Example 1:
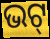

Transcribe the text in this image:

ଭଟ୍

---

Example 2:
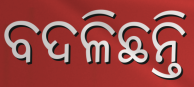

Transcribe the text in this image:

ବଦଳିଛନ୍ତି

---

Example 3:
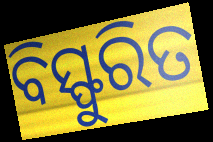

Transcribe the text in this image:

ବିସ୍ଫୁରିତ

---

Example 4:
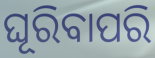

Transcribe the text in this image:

ଘୂରିବାପରି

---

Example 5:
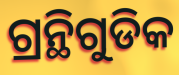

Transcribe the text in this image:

ଗ୍ରନ୍ଥିଗୁଡିକ